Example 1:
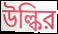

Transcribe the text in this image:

উল্কির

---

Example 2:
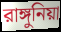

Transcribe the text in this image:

রাঙ্গুনিয়া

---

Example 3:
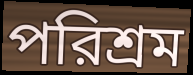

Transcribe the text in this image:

পরিশ্রম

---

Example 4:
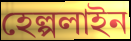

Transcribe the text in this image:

হেল্পলাইন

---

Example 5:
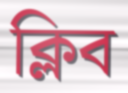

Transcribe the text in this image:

ক্লিব